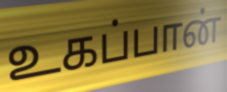
உகப்பான்